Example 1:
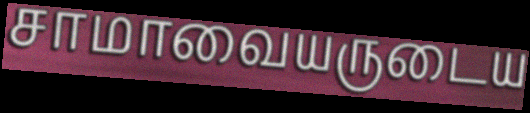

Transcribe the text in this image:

சாமாவையருடைய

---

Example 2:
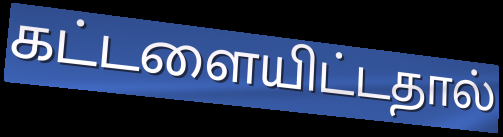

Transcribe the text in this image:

கட்டளையிட்டதால்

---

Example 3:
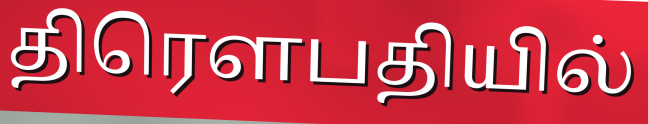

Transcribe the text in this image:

திரௌபதியில்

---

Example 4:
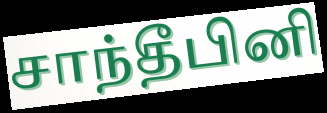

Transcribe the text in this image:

சாந்தீபினி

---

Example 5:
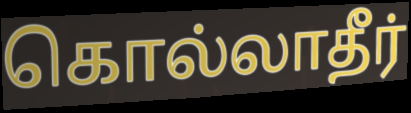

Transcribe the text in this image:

கொல்லாதீர்